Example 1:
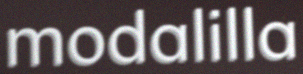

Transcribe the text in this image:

modalilla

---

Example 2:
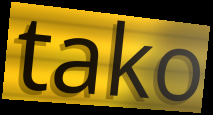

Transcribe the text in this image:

tako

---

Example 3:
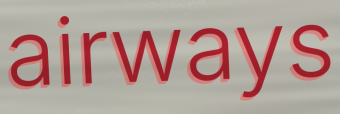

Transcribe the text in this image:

airways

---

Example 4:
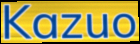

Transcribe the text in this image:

Kazuo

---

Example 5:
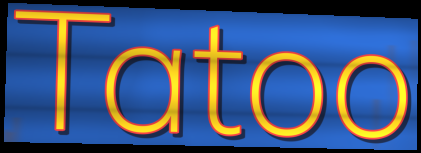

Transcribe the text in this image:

Tatoo